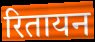
रितायन